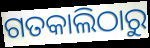
ଗତକାଲିଠାରୁ